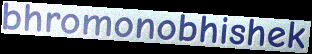
bhromonobhishek